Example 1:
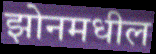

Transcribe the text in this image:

झोनमधील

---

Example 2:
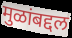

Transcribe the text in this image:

मुळांबद्दल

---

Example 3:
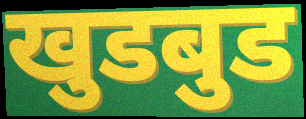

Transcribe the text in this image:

खुडबुड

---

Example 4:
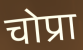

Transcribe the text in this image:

चोप्रा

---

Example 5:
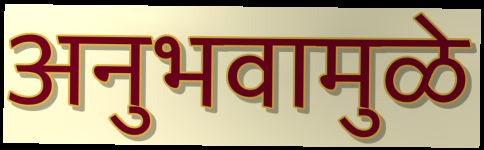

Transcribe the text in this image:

अनुभवामुळे